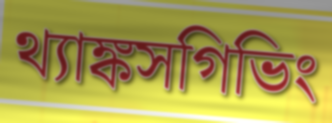
থ্যাঙ্কসগিভিং